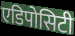
एडिपोसिटी